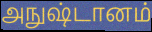
அநுஷ்டானம்